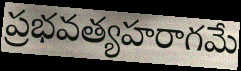
ప్రభవత్యహరాగమే